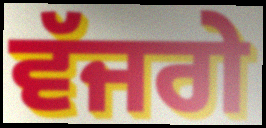
ਵੱਜਗੇ